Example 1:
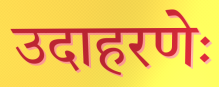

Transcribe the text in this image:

उदाहरणेः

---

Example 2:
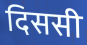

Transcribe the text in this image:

दिससी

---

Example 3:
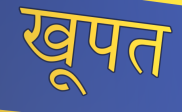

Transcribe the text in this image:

खूपत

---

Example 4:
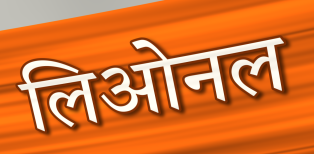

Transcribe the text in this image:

लिओनल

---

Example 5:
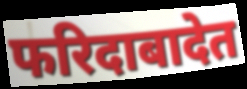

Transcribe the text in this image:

फरिदाबादेत